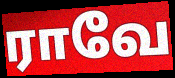
ராவே